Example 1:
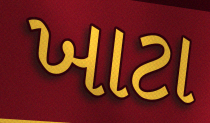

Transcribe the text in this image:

ખાટા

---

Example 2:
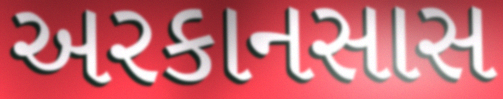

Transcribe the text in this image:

અરકાનસાસ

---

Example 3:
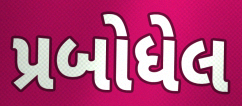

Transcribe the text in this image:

પ્રબોધેલ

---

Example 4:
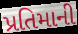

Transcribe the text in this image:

પ્રતિમાની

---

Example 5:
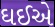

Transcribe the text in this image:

ઘઈએ